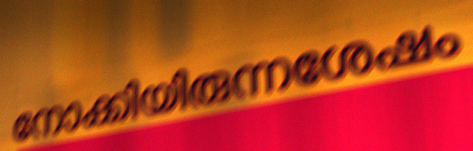
നോക്കിയിരുന്നശേഷം